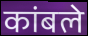
कांबले